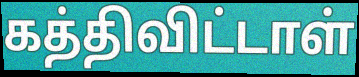
கத்திவிட்டாள்